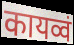
कायव्वं